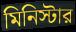
মিনিস্টার